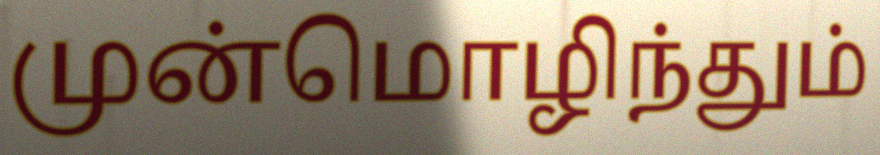
முன்மொழிந்தும்